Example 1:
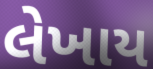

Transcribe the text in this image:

લેખાય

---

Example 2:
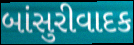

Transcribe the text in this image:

બાંસુરીવાદક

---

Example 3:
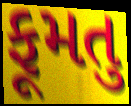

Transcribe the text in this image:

ફૂમતુ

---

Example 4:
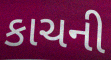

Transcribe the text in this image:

કાચની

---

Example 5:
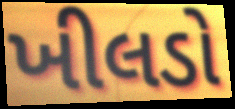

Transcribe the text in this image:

ખીલડો